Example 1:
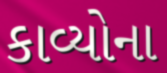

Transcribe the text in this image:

કાવ્યોના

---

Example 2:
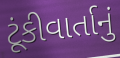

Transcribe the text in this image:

ટૂંકીવાર્તાનું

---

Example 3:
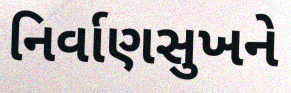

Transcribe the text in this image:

નિર્વાણસુખને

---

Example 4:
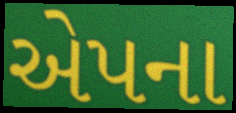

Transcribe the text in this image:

એપના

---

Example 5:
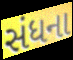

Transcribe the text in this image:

સંધના